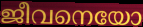
ജീവനെയോ